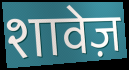
शावेज़